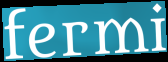
fermi